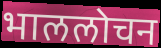
भाललोचन